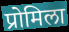
प्रोमिला